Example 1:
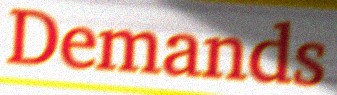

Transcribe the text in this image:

Demands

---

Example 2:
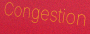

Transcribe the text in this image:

Congestion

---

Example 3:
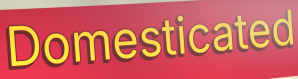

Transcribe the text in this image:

Domesticated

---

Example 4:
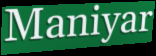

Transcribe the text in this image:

Maniyar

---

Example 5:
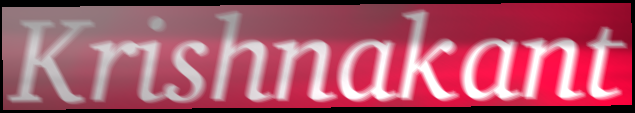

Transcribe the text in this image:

Krishnakant